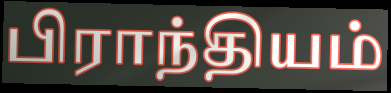
பிராந்தியம்